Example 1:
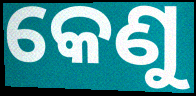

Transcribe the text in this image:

କେଣୁ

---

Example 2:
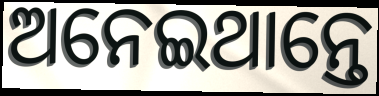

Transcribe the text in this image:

ଅନେଇଥାନ୍ତେ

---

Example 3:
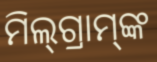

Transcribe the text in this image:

ମିଲ୍‌ଗ୍ରାମ୍‌ଙ୍କ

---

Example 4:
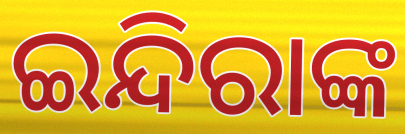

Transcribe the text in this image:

ଇନ୍ଦିରାଙ୍କ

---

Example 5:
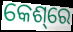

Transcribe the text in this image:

କେଶ୍‌ରେ